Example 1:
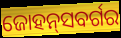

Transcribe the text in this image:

ଜୋହନ୍‌ସବର୍ଗର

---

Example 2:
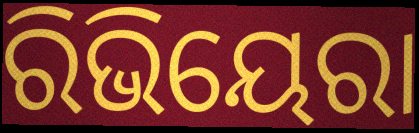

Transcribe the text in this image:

ରିଭିୟେରା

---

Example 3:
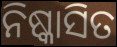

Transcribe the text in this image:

ନିଷ୍କାସିତ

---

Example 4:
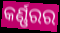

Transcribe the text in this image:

କର୍ଣ୍ଣରର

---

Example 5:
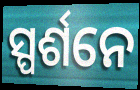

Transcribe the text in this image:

ସ୍ପର୍ଶନେ